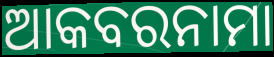
ଆକବରନାମା